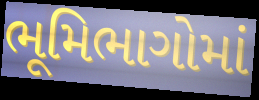
ભૂમિભાગોમાં